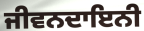
ਜੀਵਨਦਾਇਨੀ